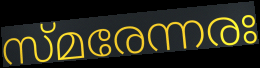
സ്മരേന്നരഃ